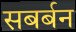
सबर्बन